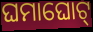
ଘମାଘୋଟ୍